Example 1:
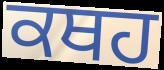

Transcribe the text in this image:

ਕਥਹ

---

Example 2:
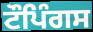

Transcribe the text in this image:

ਟੌਪਿੰਗਸ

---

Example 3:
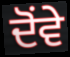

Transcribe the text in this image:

ਦੋਂਵੇ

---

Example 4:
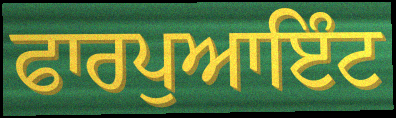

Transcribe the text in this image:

ਫਾਰਪੁਆਇੰਟ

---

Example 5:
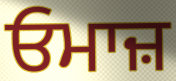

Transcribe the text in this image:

ਓਮਾਜ਼